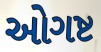
ઓગષ્ટ